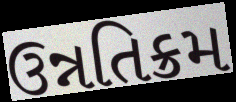
ઉન્નતિક્રમ